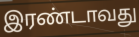
இரண்டாவது